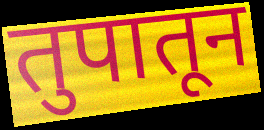
तुपातून